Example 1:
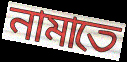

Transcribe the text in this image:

নামাতে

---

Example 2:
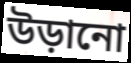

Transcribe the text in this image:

উড়ানো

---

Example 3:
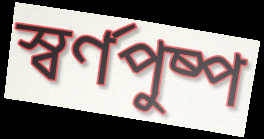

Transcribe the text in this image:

স্বর্ণপুষ্প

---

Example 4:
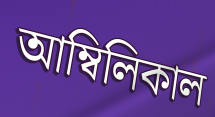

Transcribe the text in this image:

আম্বিলিকাল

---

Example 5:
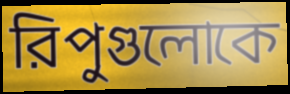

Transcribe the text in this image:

রিপুগুলোকে